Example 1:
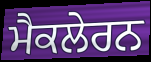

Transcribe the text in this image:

ਮੈਕਲੇਰਨ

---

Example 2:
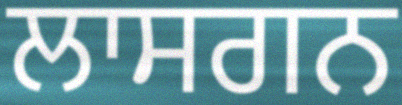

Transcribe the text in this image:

ਲਾਸਗਨ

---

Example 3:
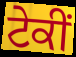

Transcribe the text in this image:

ਟੇਕੀਂ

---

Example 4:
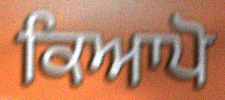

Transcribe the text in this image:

ਕਿਆਪੋ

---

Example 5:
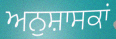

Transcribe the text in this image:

ਅਨੁਸ਼ਾਸਕਾਂ